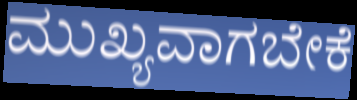
ಮುಖ್ಯವಾಗಬೇಕೆ